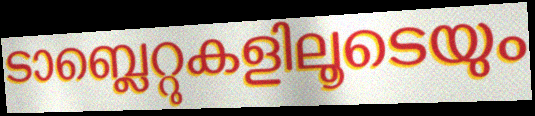
ടാബ്ലെറ്റുകളിലൂടെയും